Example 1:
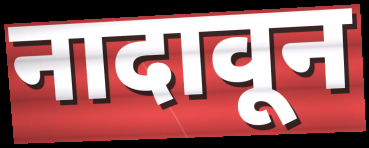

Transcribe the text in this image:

नादावून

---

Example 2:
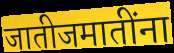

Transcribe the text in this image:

जातीजमातींना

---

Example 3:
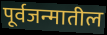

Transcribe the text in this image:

पूर्वजन्मातील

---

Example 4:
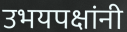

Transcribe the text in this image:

उभयपक्षांनी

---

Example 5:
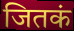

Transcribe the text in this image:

जितकं